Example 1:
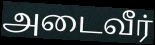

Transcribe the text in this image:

அடைவீர்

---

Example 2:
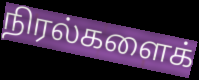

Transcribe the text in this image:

நிரல்களைக்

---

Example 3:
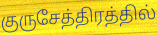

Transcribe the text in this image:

குருசேத்திரத்தில்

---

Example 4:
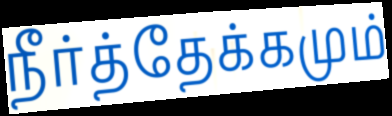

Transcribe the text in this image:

நீர்த்தேக்கமும்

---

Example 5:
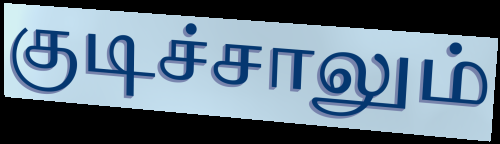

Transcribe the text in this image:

குடிச்சாலும்